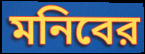
মনিবের